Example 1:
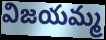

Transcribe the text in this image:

విజయమ్మ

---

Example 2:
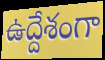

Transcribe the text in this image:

ఉద్దేశంగా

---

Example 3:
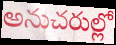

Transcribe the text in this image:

అనుచరుల్లో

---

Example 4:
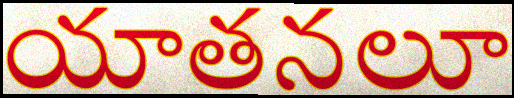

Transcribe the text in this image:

యాతనలూ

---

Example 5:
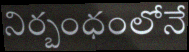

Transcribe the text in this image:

నిర్బంధంలోనే